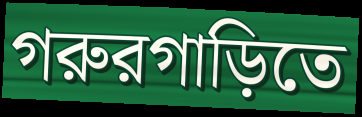
গরুরগাড়িতে